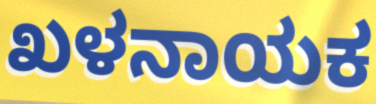
ಖಳನಾಯಕ